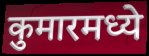
कुमारमध्ये